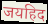
जयहिद